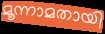
മൂന്നാമതായി